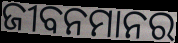
ଜୀବନମାନର